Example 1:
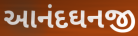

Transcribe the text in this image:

આનંદઘનજી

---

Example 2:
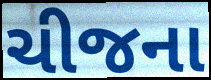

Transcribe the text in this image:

ચીજના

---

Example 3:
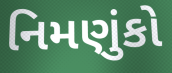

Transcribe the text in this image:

નિમણુંકો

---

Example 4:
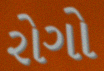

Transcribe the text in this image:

રોગો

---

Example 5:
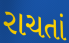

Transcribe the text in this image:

રાચતાં